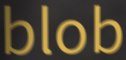
blob